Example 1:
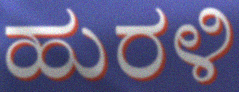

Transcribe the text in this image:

ಹುರಳಿ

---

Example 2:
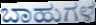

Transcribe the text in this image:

ಬಾಹುಗಳ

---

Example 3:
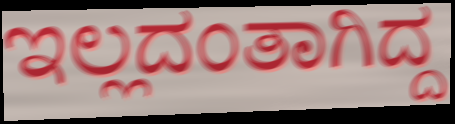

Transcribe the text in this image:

ಇಲ್ಲದಂತಾಗಿದ್ದ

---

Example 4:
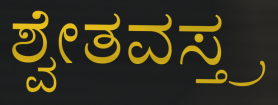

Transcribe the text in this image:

ಶ್ವೇತವಸ್ತ್ರ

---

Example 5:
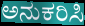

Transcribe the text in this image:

ಅನುಕರಿಸಿ